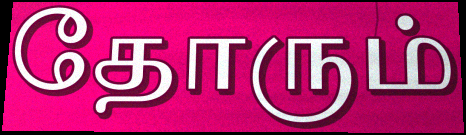
தோரும்